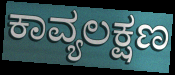
ಕಾವ್ಯಲಕ್ಷಣ